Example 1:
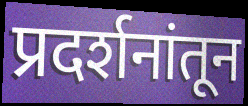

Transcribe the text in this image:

प्रदर्शनांतून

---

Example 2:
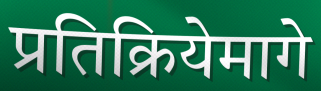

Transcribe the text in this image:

प्रतिक्रियेमागे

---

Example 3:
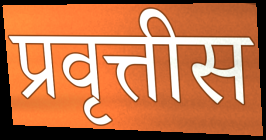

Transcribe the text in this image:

प्रवृत्तीस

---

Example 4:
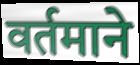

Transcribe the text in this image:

वर्तमाने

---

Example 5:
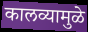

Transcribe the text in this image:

कालव्यामुळे